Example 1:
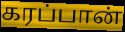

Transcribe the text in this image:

கரப்பான்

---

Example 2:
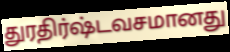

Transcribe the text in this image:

துரதிர்ஷ்டவசமானது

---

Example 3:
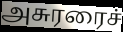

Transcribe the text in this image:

அசுரரைச்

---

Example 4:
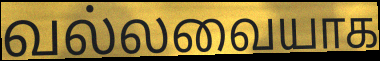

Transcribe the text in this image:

வல்லவையாக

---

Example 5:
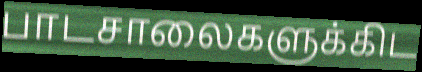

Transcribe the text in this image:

பாடசாலைகளுக்கிட